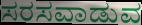
ಸರಸವಾಡುವ